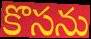
కొసను